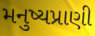
મનુષ્યપ્રાણી